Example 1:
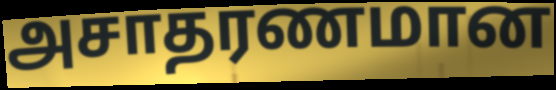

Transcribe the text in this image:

அசாதரணமான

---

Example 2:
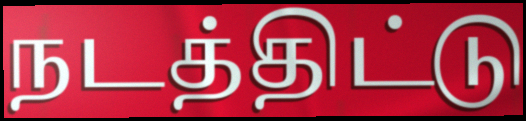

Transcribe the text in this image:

நடத்திட்டு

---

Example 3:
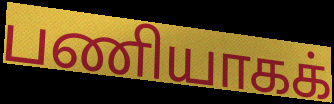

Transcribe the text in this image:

பணியாகக்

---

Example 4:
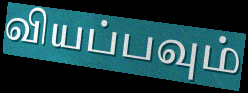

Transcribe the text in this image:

வியப்பவும்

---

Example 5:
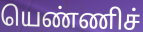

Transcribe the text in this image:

யெண்ணிச்